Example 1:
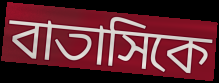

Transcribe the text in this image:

বাতাসিকে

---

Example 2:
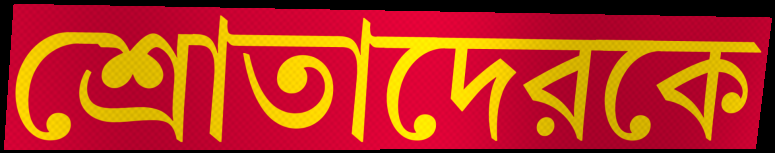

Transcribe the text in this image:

শ্রোতাদেরকে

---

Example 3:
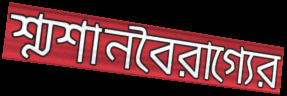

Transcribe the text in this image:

শ্মশানবৈরাগ্যের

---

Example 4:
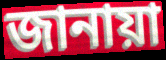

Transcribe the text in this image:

জানায়া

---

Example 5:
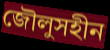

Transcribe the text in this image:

জৌলুসহীন